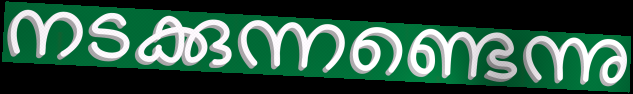
നടക്കുന്നണ്ടെന്നു